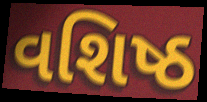
વશિષ્ઠ